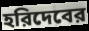
হরিদেবের